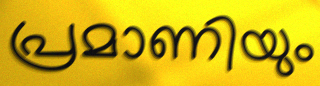
പ്രമാണിയും